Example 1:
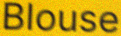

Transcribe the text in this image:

Blouse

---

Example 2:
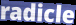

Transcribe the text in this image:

radicle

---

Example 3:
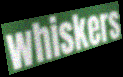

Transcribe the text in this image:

whiskers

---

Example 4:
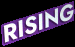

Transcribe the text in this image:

RISING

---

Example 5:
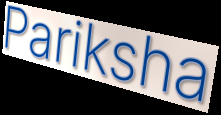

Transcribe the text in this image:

Pariksha